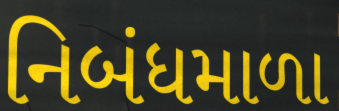
નિબંધમાળા